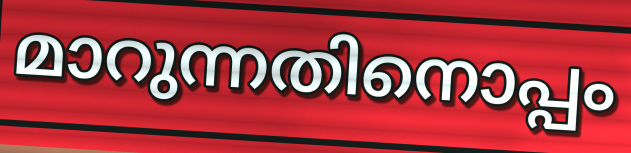
മാറുന്നതിനൊപ്പം